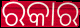
ରକାର